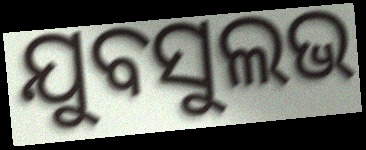
ଯୁବସୁଲଭ